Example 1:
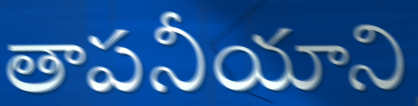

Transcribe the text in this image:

తాపనీయాని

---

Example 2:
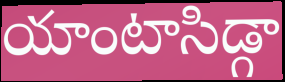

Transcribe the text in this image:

యాంటాసిడ్గా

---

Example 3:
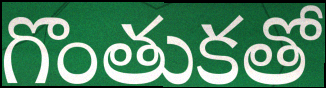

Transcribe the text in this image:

గొంతుకతో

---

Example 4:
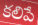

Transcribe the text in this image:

కలిపే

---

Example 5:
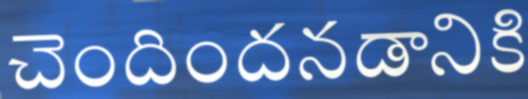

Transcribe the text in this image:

చెందిందనడానికి